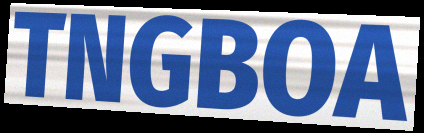
TNGBOA